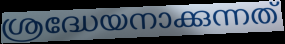
ശ്രദ്ധേയനാക്കുന്നത്